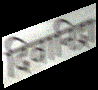
दिवानिद्रा